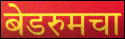
बेडरुमचा